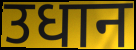
उधान